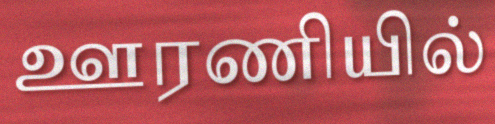
ஊரணியில்